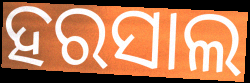
ହରସାଲ